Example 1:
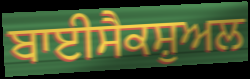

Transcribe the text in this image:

ਬਾਈਸੈਕਸ਼ੁਅਲ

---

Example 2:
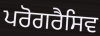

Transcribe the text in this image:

ਪਰੋਗਰੈਸਿਵ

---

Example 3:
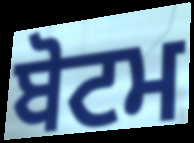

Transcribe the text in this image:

ਬੋਟਮ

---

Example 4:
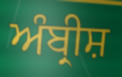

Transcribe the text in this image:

ਅੰਬ੍ਰੀਸ਼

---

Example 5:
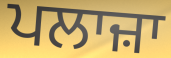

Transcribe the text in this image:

ਪਲਾਜ਼ਾ